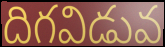
దిగవిడువ